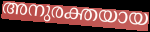
അനുരക്തയായ